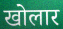
खोलार